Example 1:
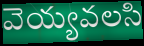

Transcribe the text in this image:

వెయ్యవలసి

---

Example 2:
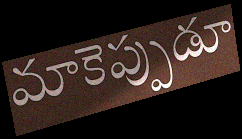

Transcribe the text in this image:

మాకెప్పుడూ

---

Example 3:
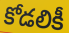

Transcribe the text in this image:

కోడలికీ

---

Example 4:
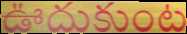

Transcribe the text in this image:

ఊదుకుంట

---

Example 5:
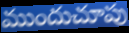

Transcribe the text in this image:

ముందుచూపు